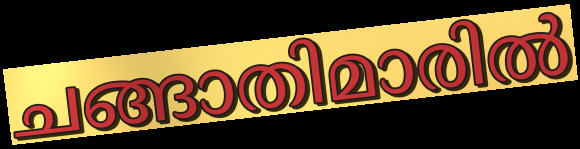
ചങ്ങാതിമാരിൽ